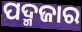
ପଦ୍ମଜାର